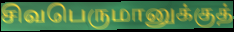
சிவபெருமானுக்குத்